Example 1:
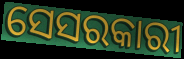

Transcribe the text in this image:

ସେସରକାରୀ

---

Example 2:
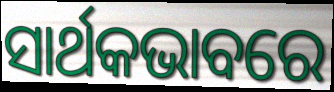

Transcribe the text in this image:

ସାର୍ଥକଭାବରେ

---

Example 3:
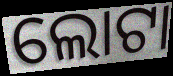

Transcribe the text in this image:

ଲୋଟା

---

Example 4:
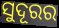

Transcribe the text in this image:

ସୁଦୂରର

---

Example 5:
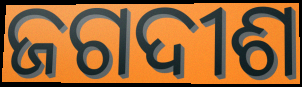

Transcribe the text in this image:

ଜଗଦୀଶ